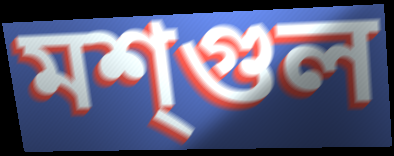
মশ্গুল